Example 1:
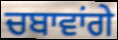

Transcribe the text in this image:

ਚਬਾਵਾਂਗੇ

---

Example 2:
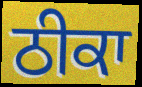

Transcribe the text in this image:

ਠੀਕਾ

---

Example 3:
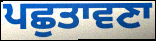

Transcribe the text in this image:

ਪਛੁਤਾਵਣਾ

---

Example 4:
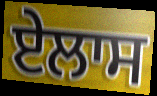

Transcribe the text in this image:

ਏਲਾਸ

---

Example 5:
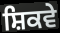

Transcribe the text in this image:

ਸ਼ਿਕਵੇ